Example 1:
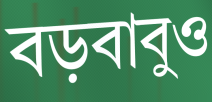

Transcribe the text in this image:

বড়বাবুও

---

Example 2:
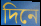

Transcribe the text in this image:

দিনে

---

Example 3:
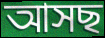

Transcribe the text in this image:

আসছ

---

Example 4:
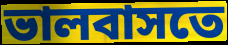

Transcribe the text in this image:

ভালবাসতে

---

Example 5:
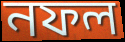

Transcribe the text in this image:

নফল